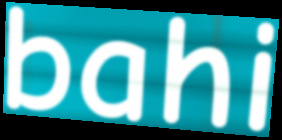
bahi